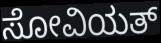
ಸೋವಿಯತ್